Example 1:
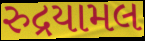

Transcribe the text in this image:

રુદ્રયામલ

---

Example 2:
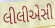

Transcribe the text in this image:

લીલીએસી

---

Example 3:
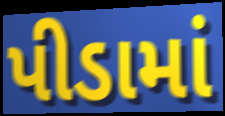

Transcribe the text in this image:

પીડામાં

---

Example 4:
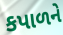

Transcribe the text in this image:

કપાળને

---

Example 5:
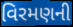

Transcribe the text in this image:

વિરમણની